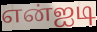
என்ஐடி